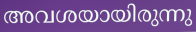
അവശയായിരുന്നു